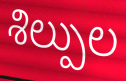
శిల్పుల